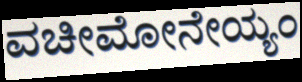
ವಚೀಮೋನೇಯ್ಯಂ